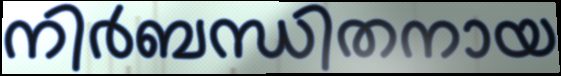
നിർബന്ധിതനായ